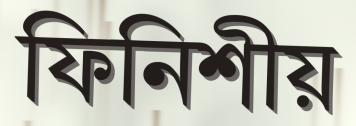
ফিনিশীয়